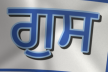
ਗੁਸ